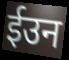
ईउन